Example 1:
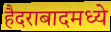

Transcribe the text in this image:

हैदराबादमध्ये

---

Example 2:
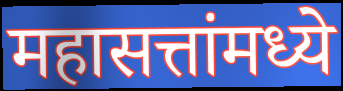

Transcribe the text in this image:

महासत्तांमध्ये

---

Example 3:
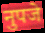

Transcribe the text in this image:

नुपजे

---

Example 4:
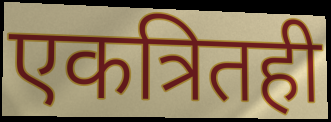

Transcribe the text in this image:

एकत्रितही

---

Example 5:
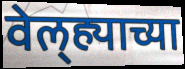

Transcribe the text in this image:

वेल्ह्याच्या